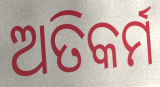
ଅତିକର୍ମ